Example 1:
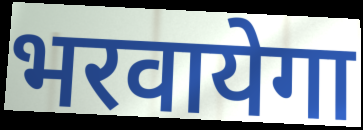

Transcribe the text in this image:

भरवायेगा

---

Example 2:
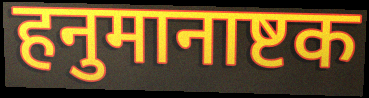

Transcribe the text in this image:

हनुमानाष्टक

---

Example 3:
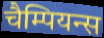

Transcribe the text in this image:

चैम्पियन्स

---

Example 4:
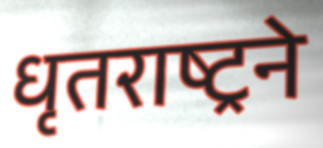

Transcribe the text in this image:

धृतराष्ट्रने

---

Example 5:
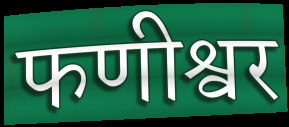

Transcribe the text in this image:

फणीश्वर